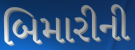
બિમારીની